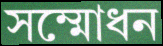
সম্মোধন